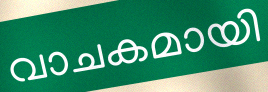
വാചകമായി